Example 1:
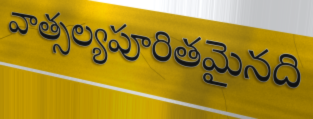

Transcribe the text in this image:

వాత్సల్యపూరితమైనది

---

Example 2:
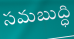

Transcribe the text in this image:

సమబుద్ధి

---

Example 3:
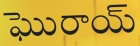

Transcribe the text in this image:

ఘొరాయ్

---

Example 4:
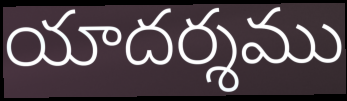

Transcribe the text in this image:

యాదర్శము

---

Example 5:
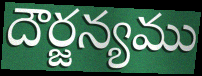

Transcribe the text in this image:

దౌర్జన్యము